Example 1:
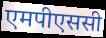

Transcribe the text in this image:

एमपीएससी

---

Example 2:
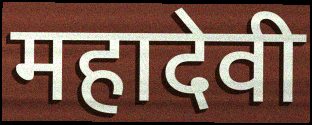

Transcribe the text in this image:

महादेवी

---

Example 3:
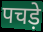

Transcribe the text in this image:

पचड़े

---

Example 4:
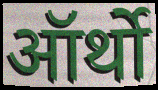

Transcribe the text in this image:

ऑर्थो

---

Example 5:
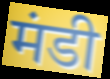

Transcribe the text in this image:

मंडी